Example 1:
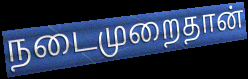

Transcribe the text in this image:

நடைமுறைதான்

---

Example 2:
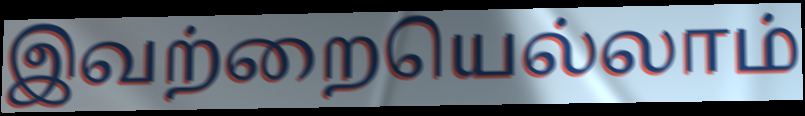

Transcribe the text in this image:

இவற்றையெல்லாம்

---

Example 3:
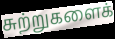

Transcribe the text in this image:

சுற்றுகளைக்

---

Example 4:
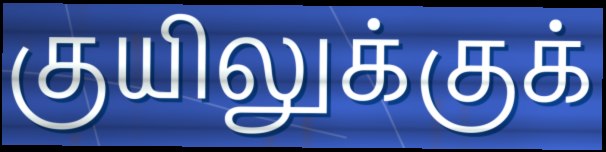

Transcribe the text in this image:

குயிலுக்குக்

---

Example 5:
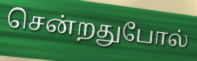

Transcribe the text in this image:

சென்றதுபோல்